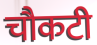
चौकटी